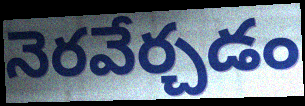
నెరవేర్చడం